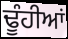
ਢੂੰਹੀਆਂ